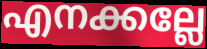
എനക്കല്ലേ